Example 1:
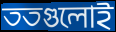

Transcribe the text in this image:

ততগুলোই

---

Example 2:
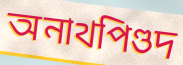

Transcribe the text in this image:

অনাথপিণ্ডদ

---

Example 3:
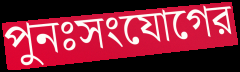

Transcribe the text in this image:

পুনঃসংযোগের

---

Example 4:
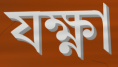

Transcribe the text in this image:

যক্ষ্ণা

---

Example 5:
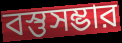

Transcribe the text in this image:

বস্তুসম্ভার